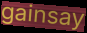
gainsay